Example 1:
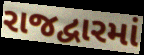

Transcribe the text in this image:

રાજદ્વારમાં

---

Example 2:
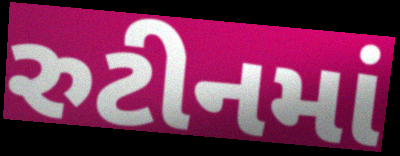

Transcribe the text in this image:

રુટીનમાં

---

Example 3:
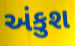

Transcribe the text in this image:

અંકુશ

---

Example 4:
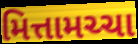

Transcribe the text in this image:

મિત્તામચ્ચા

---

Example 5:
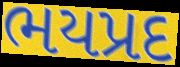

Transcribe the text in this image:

ભયપ્રદ